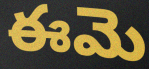
ఈమె